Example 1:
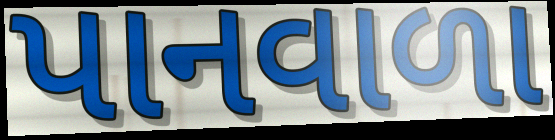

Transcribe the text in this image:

પાનવાળા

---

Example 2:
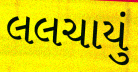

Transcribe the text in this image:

લલચાયું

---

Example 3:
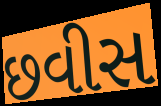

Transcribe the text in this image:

છવીસ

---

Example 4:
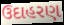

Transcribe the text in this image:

ઉદાહરણ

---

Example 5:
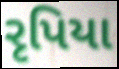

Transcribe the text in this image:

રૃપિયા